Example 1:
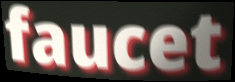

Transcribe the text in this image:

faucet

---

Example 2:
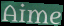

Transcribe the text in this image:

Aime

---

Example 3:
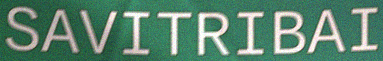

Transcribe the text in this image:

SAVITRIBAI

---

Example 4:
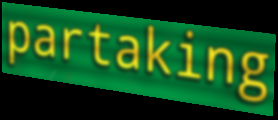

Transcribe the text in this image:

partaking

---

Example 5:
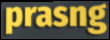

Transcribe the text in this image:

prasng